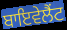
ਬਾਇਵੇਲੈਂਟ